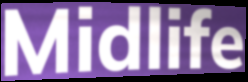
Midlife